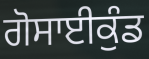
ਗੋਸਾਈਕੁੰਡ